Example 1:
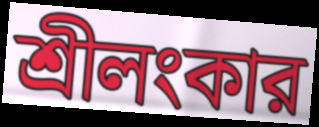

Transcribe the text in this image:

শ্রীলংকার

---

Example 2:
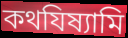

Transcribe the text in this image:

কথযিষ্যামি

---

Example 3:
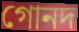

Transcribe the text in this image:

গোনদ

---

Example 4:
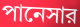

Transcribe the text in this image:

পানেসার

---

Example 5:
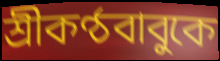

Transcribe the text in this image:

শ্রীকণ্ঠবাবুকে